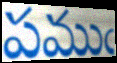
పముఁ